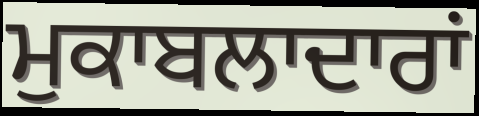
ਮੁਕਾਬਲਾਦਾਰਾਂ